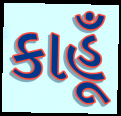
કાહૂઁ